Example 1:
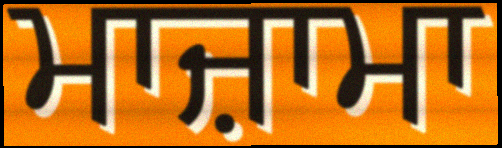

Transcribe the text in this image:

ਮਾਜ਼ਾਮਾ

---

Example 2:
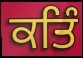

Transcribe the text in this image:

ਕਤਿੰ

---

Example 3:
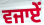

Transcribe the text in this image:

ਵਜਾਏਂ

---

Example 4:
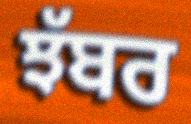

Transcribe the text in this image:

ਝੱਬਰ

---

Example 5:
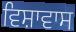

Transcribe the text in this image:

ਵਿਸ਼ਾਵਾਸ